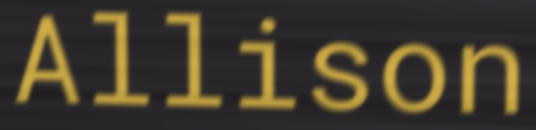
Allison